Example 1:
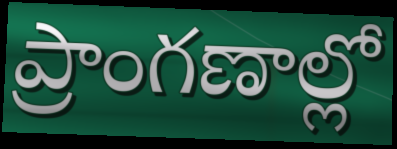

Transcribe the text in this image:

ప్రాంగణాల్లో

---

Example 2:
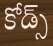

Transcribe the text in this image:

కోడ్స్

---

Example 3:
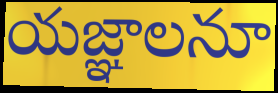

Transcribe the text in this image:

యజ్ఞాలనూ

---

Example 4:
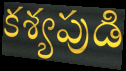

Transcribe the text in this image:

కశ్యపుడి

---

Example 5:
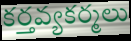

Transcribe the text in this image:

కర్తవ్యకర్మలు